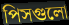
পিসগুলো